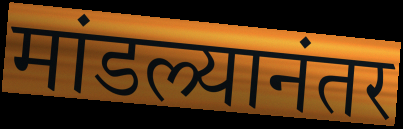
मांडल्यानंतर